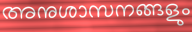
അനുശാസനങ്ങളും